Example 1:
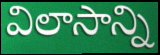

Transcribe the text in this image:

విలాసాన్ని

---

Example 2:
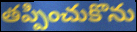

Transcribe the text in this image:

తప్పించుకొను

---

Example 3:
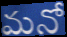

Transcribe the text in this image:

మనో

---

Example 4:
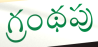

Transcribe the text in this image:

గ్రంథపు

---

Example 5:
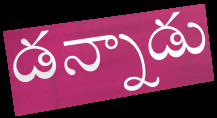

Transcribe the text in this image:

డన్నాడు